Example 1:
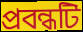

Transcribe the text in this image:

প্ৰবন্ধটি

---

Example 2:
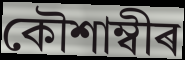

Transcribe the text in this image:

কৌশাম্বীৰ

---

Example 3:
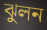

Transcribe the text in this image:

ঝুলন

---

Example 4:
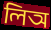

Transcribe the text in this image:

লিঅ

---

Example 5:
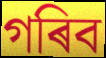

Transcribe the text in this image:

গৰিব